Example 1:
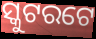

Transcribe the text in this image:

ସ୍କୁଟରଟେ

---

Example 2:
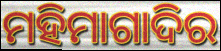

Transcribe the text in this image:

ମହିମାଗାଦିର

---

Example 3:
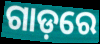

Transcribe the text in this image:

ଗାଡ଼ରେ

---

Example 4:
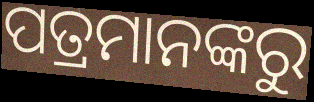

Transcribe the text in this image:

ପତ୍ରମାନଙ୍କରୁ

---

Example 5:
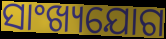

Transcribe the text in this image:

ସାଂଖ୍ଯଯୋଗ